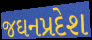
જઘનપ્રદેશ